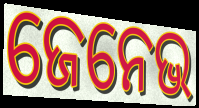
ଜେନେଭ